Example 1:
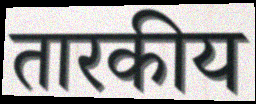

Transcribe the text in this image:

तारकीय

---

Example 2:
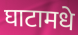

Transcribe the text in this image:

घाटामधे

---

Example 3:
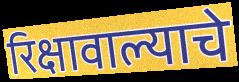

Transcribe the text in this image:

रिक्षावाल्याचे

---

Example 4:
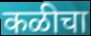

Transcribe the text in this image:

कळीचा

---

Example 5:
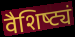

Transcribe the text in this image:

वैशिष्ट्यं